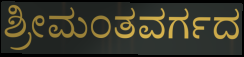
ಶ್ರೀಮಂತವರ್ಗದ